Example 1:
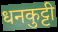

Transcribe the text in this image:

धनकुट्टी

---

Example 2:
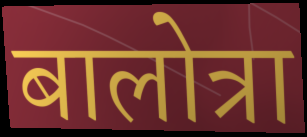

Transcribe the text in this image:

बालोत्रा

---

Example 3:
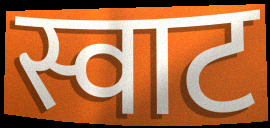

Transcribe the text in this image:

स्वाट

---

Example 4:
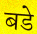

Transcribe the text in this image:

बडे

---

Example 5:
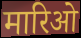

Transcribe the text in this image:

मारिओ